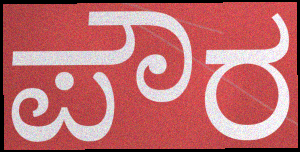
ಪೌರ